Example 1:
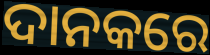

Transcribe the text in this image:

ଦାନକରେ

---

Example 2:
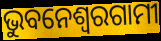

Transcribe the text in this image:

ଭୁବନେଶ୍ୱରଗାମୀ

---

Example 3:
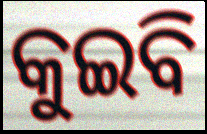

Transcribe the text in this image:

କୁଇବି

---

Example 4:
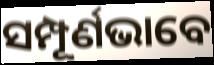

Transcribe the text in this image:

ସମ୍ପୂର୍ଣଭାବେ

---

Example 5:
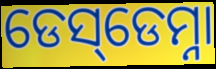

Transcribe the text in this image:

ଡେସ୍‌ଡେମ୍ନା